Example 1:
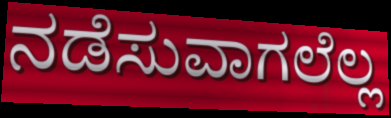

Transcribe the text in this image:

ನಡೆಸುವಾಗಲೆಲ್ಲ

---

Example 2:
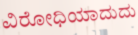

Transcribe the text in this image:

ವಿರೋಧಿಯಾದುದು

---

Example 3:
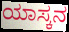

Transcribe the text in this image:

ಯಾಸ್ಕನ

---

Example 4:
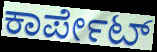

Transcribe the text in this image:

ಕಾರ್ಪೇಟ್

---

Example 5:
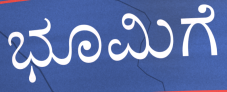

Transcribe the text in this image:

ಭೂಮಿಗೆ